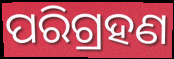
ପରିଗ୍ରହଣ